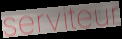
serviteur